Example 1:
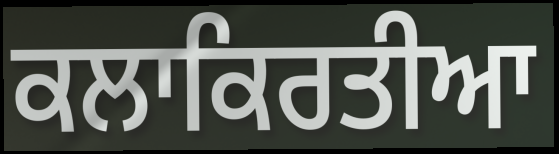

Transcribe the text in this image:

ਕਲਾਕਿਰਤੀਆ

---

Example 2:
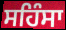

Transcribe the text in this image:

ਸਹਿੰਸਾ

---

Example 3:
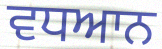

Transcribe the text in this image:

ਵਧਆਨ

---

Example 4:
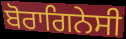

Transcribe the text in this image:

ਬੋਰਾਗਿਨੇਸੀ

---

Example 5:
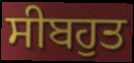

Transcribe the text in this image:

ਸੀਬਹੁਤ